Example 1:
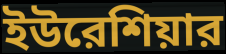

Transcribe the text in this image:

ইউরেশিয়ার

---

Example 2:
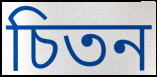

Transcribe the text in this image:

চিতন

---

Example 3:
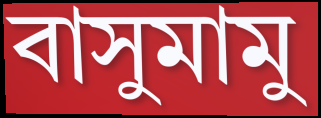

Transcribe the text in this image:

বাসুমামু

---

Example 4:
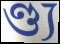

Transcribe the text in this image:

ণ্ড্য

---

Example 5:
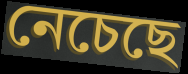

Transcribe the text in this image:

নেচেছে